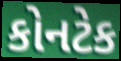
કોનટેક